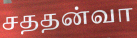
சததன்வா